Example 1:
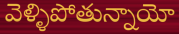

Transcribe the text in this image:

వెళ్ళిపోతున్నాయో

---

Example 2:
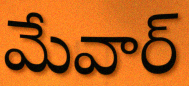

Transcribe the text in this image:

మేవార్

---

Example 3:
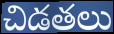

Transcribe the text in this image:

చిడతలు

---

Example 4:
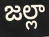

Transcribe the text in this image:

జల్లా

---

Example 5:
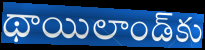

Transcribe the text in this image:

థాయిలాండ్‌కు